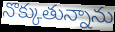
నొక్కుతున్నాను